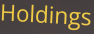
Holdings